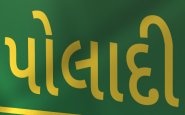
પોલાદી